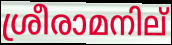
ശ്രീരാമനില്